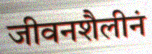
जीवनशैलीनं